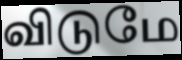
விடுமே